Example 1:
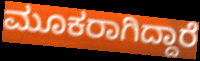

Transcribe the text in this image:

ಮೂಕರಾಗಿದ್ದಾರೆ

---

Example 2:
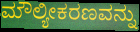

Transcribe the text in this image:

ಮೌಲ್ಯೀಕರಣವನ್ನು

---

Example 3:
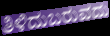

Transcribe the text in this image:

ತಿಳಿದುಬರುವದು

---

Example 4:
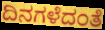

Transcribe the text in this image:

ದಿನಗಳೆದಂತೆ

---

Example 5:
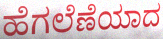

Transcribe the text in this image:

ಹೆಗಲೆಣೆಯಾದ